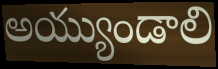
అయ్యుండాలి